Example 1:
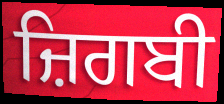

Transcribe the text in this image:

ਜ਼ਿਗਬੀ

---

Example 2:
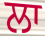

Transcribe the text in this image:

ਲਾ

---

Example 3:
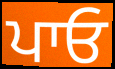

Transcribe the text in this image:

ਪਾਓ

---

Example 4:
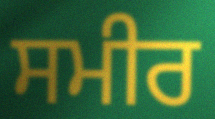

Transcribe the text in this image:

ਸਮੀਰ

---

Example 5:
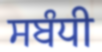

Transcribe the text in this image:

ਸਬੰਧੀ